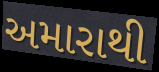
અમારાથી